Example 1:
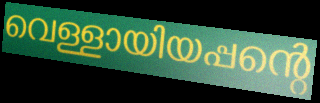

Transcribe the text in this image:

വെള്ളായിയപ്പന്റെ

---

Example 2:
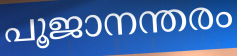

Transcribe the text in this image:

പൂജാനന്തരം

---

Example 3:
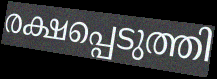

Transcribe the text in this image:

രക്ഷപ്പെടുത്തി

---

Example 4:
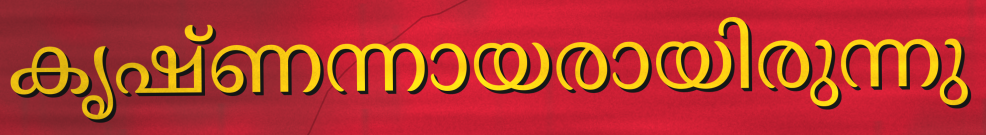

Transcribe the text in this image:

കൃഷ്ണന്നായരായിരുന്നു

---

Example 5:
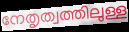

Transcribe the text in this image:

നേതൃത്വത്തിലുള്ള